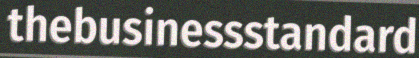
thebusinessstandard